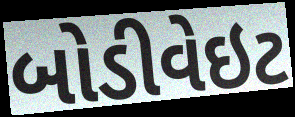
બોડીવેઇટ